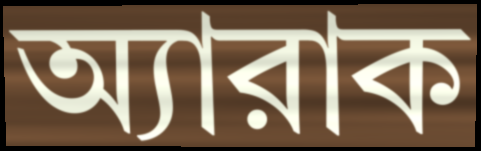
অ্যারাক